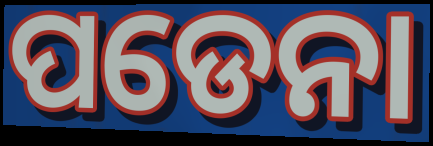
ପଡେନା